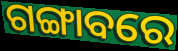
ଗଙ୍ଗାବରେ